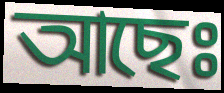
আছেঃ